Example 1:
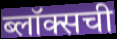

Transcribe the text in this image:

ब्लॉक्सची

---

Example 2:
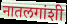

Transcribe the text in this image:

नातलगांशी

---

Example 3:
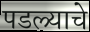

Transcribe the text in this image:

पडल्याचे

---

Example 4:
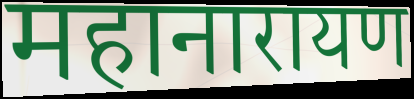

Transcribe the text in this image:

महानारायण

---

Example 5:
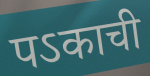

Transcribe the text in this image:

पऽकाची